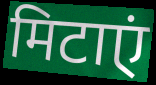
मिटाएं